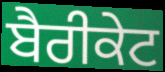
ਬੈਰੀਕੇਟ